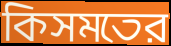
কিসমতের